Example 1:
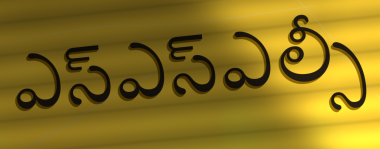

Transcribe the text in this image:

ఎస్ఎస్ఎల్సీ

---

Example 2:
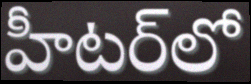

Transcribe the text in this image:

హీటర్‌లో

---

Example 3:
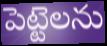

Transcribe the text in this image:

పెట్టెలను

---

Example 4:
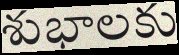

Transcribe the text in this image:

శుభాలకు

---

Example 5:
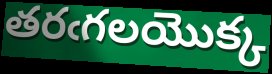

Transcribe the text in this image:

తరఁగలయొక్క